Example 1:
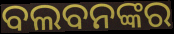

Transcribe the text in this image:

ବଲବନଙ୍କର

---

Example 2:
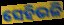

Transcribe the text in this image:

ସେହିଭଳି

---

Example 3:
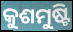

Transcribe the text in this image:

କୁଶମୁଷ୍ଟି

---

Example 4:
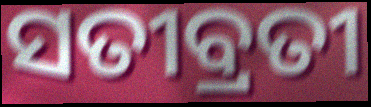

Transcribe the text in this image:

ସତୀବ୍ରତୀ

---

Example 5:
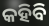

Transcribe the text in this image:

କହିବି